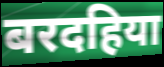
बरदहिया